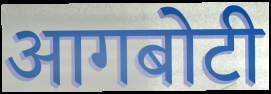
आगबोटी